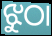
ଝୁଠା